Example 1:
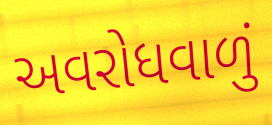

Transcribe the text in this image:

અવરોધવાળું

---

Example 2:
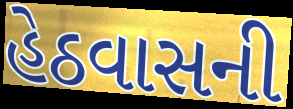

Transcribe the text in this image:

હેઠવાસની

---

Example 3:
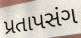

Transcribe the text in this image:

પ્રતાપસંગ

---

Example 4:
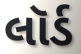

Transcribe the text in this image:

લૉર્ડ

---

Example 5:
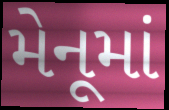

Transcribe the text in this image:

મેનૂમાં